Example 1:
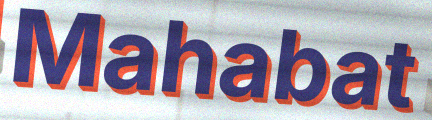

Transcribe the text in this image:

Mahabat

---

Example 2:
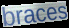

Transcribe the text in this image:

braces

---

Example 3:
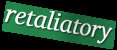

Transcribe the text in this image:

retaliatory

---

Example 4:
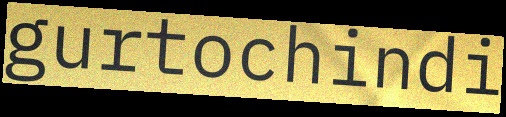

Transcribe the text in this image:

gurtochindi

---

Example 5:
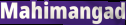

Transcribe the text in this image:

Mahimangad